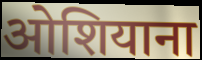
ओशियाना